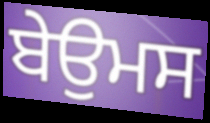
ਬੇਉਮਸ